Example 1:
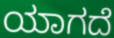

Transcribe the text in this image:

ಯಾಗದೆ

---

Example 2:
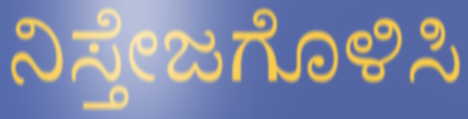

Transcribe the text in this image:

ನಿಸ್ತೇಜಗೊಳಿಸಿ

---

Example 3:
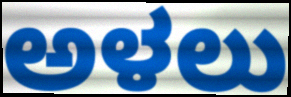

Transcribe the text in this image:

ಅಳಲು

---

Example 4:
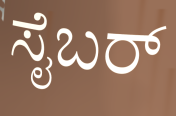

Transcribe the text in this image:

ಸೈಬರ್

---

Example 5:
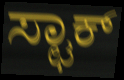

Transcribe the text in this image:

ಸ್ಟಾಕ್